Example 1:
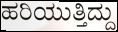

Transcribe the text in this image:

ಹರಿಯುತ್ತಿದ್ದು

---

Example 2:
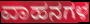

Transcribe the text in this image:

ವಾಹನಗಳ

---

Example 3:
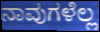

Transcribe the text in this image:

ನಾವುಗಳೆಲ್ಲ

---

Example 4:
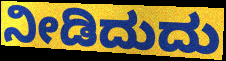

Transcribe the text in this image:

ನೀಡಿದುದು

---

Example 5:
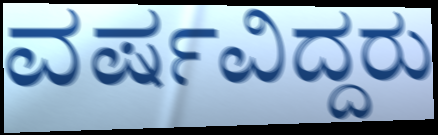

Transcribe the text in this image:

ವರ್ಷವಿದ್ದರು